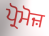
ਪ੍ਰੋਮੋਜ਼